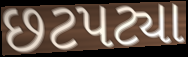
છટપટ્યા